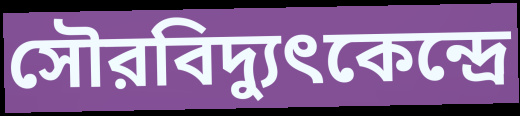
সৌরবিদ্যুৎকেন্দ্রে